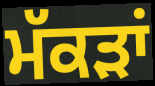
ਮੱਕੜਾਂ